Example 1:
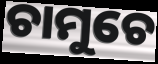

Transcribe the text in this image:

ଚାମୁଚେ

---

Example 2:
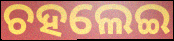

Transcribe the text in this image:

ଚହଲେଇ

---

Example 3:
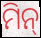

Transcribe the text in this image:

ମିନ୍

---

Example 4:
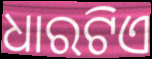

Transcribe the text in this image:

ଧାରଟିଏ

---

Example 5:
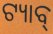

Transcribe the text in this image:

ଟ୍ୟାବ୍